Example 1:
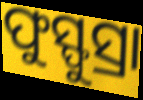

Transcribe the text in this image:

ଫୁସ୍ଫୁସ୍ରା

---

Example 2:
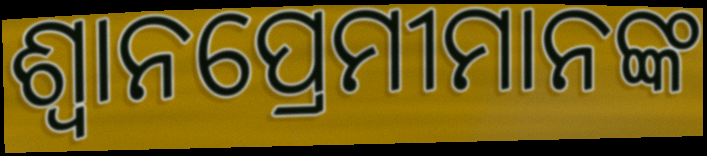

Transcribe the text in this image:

ଶ୍ଵାନପ୍ରେମୀମାନଙ୍କ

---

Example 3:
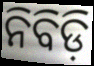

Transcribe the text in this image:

ନିବିଡ଼ି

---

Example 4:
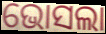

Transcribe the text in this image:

ଭୋସଲା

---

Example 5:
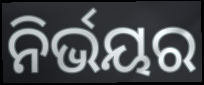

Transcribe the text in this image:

ନିର୍ଭୟର